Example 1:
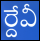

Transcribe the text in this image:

ర్దేవీ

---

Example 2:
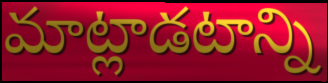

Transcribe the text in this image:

మాట్లాడటాన్ని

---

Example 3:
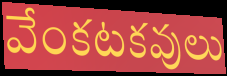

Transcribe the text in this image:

వేంకటకవులు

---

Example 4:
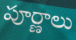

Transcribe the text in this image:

పూర్ణాలు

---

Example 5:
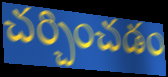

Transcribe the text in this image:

చర్చించడం